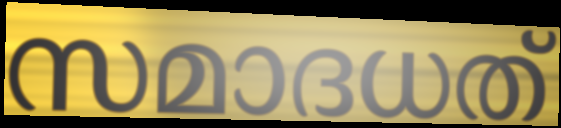
സമാദധത്